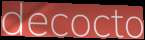
decocto